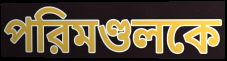
পরিমণ্ডলকে